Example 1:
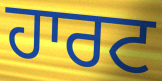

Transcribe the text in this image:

ਹਾਰਟ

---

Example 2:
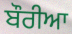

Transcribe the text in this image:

ਬੌਰੀਆ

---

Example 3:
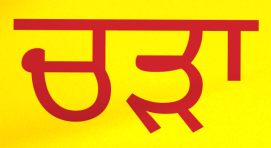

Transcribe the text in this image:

ਚੜਾ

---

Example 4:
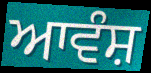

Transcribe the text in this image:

ਆਵੰਸ਼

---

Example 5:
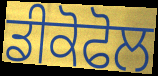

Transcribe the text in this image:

ਡੀਕੋਫੋਲ